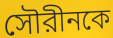
সৌরীনকে